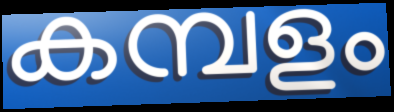
കമ്പളം